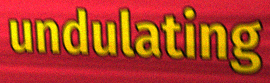
undulating